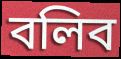
বলিব